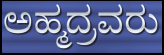
ಅಹ್ಮದ್ರವರು